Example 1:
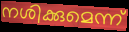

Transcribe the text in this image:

നശിക്കുമെന്ന്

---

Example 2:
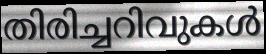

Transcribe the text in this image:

തിരിച്ചറിവുകൾ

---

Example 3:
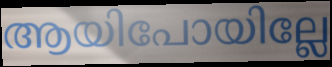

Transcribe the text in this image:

ആയിപോയില്ലേ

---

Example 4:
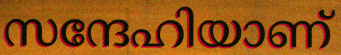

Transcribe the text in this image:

സന്ദേഹിയാണ്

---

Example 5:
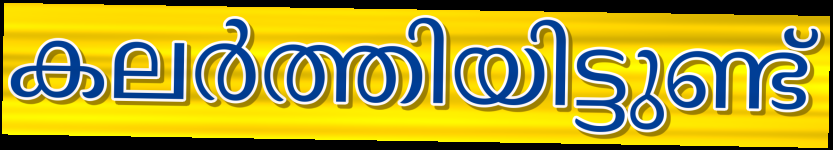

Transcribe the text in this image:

കലർത്തിയിട്ടുണ്ട്